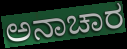
ಅನಾಚಾರ